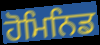
ਹੋਮਿਨਿਡ